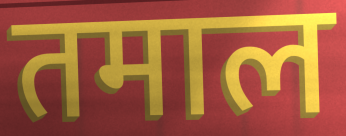
तमाल